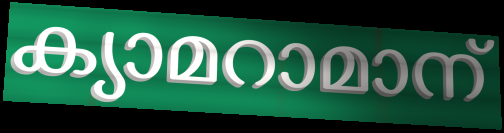
ക്യാമറാമാന്